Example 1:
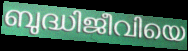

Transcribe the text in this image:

ബുദ്ധിജീവിയെ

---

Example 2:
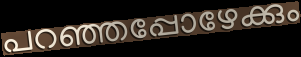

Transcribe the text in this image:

പറഞ്ഞപ്പോഴേക്കും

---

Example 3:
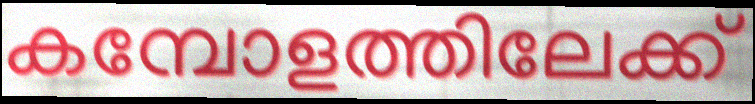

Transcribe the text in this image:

കമ്പോളത്തിലേക്ക്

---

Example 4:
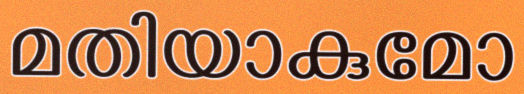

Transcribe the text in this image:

മതിയാകുമോ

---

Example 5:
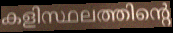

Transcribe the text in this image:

കളിസ്ഥലത്തിന്റെ